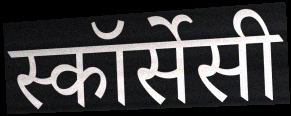
स्कॉर्सेसी